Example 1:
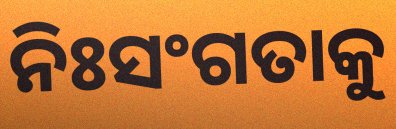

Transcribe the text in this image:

ନିଃସଂଗତାକୁ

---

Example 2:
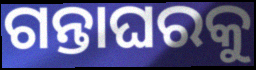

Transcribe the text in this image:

ଗନ୍ତାଘରକୁ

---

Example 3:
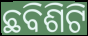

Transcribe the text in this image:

ଛବିଶିଟି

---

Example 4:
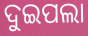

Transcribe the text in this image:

ଦୁଇପଲା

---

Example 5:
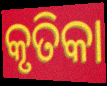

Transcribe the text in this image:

କୃତିକା